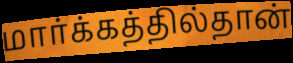
மார்க்கத்தில்தான்